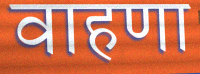
वाहणा